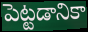
పెట్టడానికా